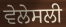
ਵੇਲੇਸਲੀ